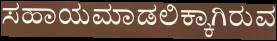
ಸಹಾಯಮಾಡಲಿಕ್ಕಾಗಿರುವ